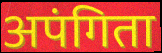
अपंगिता